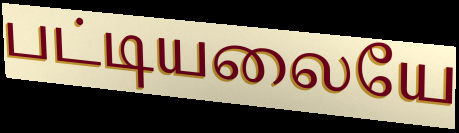
பட்டியலையே